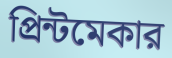
প্রিন্টমেকার